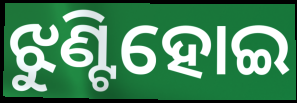
ଝୁଣ୍ଟିହୋଇ